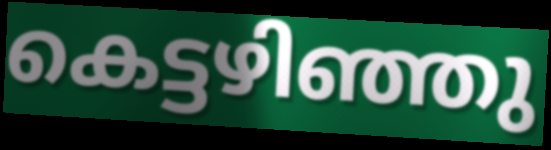
കെട്ടഴിഞ്ഞു